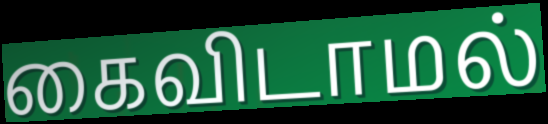
கைவிடாமல்